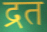
द्रत